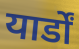
यार्डों